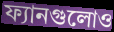
ফ্যানগুলোও